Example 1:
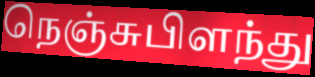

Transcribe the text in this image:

நெஞ்சுபிளந்து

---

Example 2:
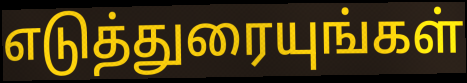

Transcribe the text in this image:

எடுத்துரையுங்கள்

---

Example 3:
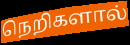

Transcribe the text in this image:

நெறிகளால்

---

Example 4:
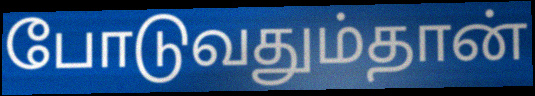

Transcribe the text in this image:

போடுவதும்தான்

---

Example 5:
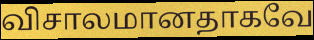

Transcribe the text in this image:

விசாலமானதாகவே